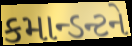
કમાન્ડન્ટને